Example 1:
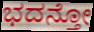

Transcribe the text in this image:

ಭದನ್ತೋ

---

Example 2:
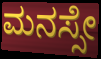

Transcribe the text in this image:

ಮನಸ್ಸೇ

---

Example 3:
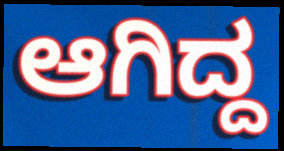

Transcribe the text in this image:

ಆಗಿದ್ದ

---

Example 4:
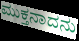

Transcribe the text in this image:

ಮುಕ್ತನಾದನು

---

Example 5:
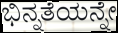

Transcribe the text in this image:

ಭಿನ್ನತೆಯನ್ನೇ